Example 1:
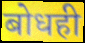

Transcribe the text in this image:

बोधही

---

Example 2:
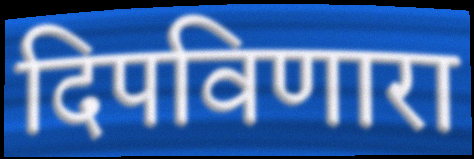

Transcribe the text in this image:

दिपविणारा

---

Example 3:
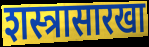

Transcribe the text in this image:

शस्त्रासारखा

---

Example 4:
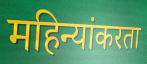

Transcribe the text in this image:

महिन्यांकरता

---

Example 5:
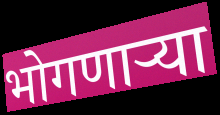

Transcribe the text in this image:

भोगणाऱ्या